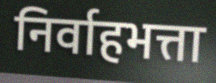
निर्वाहभत्ता